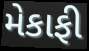
મેકાફી